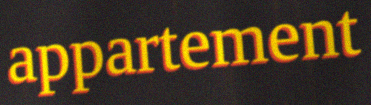
appartement